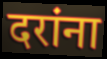
दरांना